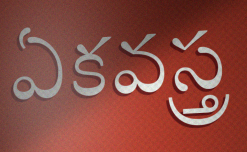
ఏకవస్త్ర